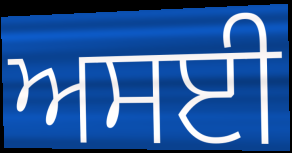
ਅਸਈ